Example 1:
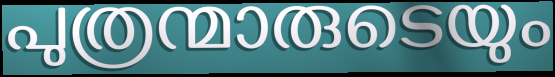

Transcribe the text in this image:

പുത്രന്മാരുടെയും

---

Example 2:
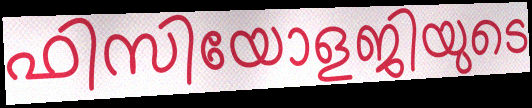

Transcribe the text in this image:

ഫിസിയോളജിയുടെ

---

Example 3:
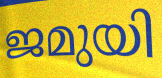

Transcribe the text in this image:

ജമുയി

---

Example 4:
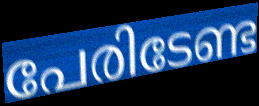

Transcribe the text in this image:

പേരിടേണ്ട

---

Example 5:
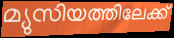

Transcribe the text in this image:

മ്യുസിയത്തിലേക്ക്